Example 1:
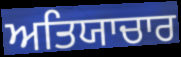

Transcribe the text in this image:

ਅਤਿਯਾਚਾਰ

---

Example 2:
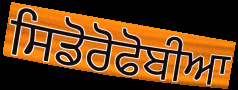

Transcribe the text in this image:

ਸਿਡੋਰੋਫੋਬੀਆ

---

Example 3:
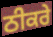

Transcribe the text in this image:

ਠੀਕਰੇ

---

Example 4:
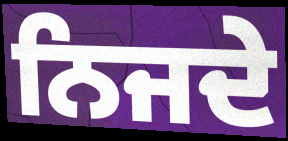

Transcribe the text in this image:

ਨਿਜਦੇ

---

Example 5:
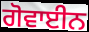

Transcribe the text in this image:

ਗੋਵਾਈਨ